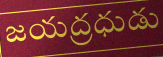
జయద్రధుడు